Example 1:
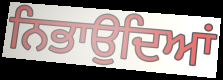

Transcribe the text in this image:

ਨਿਭਾਉਦਿਆਂ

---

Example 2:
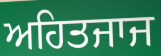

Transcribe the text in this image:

ਅਹਿਤਜਾਜ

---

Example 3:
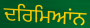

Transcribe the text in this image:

ਦਰਿਮਿਆਂਨ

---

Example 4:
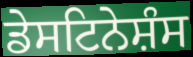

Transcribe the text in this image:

ਡੇਸਟਿਨੇਸ਼ੰਸ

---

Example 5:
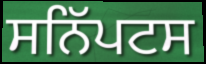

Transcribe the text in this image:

ਸਨਿੱਪਟਸ